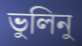
ভুলিনু